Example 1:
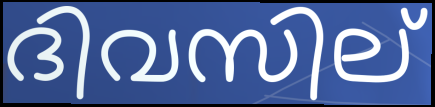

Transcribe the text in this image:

ദിവസില്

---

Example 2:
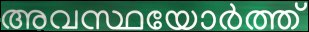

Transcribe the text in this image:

അവസ്ഥയോർത്ത്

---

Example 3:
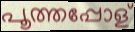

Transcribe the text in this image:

പൂത്തപ്പോള്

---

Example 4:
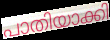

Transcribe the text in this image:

പാതിയാക്കി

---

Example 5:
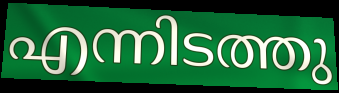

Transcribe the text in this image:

എന്നിടത്തു